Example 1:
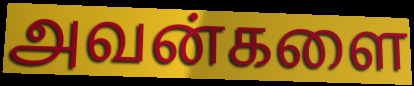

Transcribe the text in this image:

அவன்களை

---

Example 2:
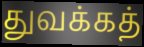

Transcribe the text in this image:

துவக்கத்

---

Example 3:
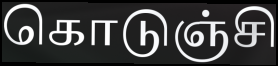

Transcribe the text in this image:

கொடுஞ்சி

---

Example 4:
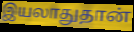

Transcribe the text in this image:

இயலாதுதான்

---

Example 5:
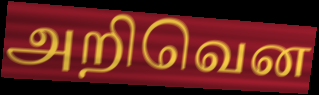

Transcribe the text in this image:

அறிவென